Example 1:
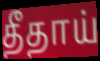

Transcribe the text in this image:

தீதாய்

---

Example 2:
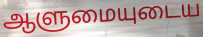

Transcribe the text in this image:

ஆளுமையுடைய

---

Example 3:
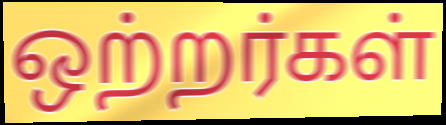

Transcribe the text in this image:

ஒற்றர்கள்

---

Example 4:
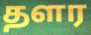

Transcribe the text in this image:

தளர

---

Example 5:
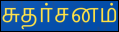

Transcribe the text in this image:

சுதர்சனம்